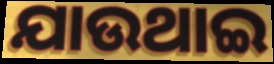
ଯାଉଥାଇ